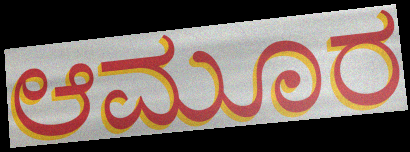
ಆಮೂರ